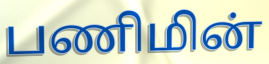
பணிமின்